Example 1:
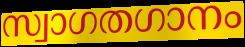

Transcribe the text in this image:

സ്വാഗതഗാനം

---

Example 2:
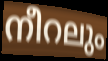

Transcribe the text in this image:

നീറലും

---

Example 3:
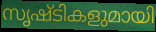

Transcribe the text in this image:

സൃഷ്ടികളുമായി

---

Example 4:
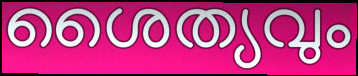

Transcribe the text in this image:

ശൈത്യവും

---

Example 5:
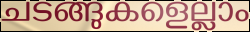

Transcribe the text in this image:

ചടങ്ങുകളെല്ലാം